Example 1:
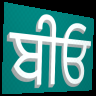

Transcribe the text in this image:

ਬੀਓ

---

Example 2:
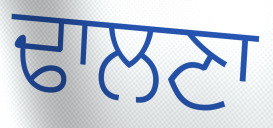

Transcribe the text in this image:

ਢਾਲਣਾ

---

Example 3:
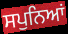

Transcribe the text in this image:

ਸਪੁਨਿਆਂ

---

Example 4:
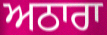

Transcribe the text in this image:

ਅਠਾਰਾ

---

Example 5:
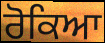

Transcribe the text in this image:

ਰੋਕਿਆ